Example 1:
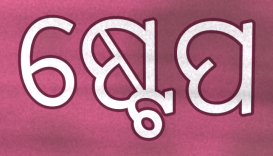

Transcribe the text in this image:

ଷ୍ଟେପ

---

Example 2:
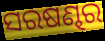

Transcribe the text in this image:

ସରଷଣ୍ଢର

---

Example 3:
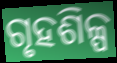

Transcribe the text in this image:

ଗୃହଶିଳ୍ପ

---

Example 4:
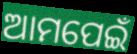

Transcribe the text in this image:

ଆମପେଇଁ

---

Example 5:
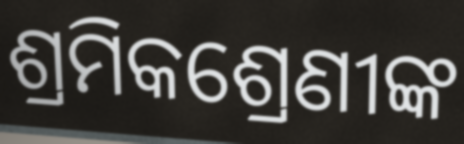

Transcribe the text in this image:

ଶ୍ରମିକଶ୍ରେଣୀଙ୍କ